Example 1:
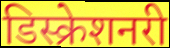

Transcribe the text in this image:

डिस्क्रेशनरी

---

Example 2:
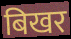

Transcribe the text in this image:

बिखर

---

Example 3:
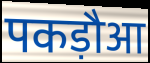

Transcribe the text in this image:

पकड़ौआ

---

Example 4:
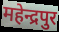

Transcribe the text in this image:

महेन्द्रपुर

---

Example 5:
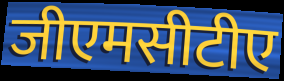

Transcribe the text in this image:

जीएमसीटीए